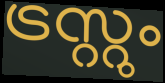
ട്രസ്റ്റും